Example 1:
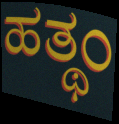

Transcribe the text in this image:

ಹತ್ಥಂ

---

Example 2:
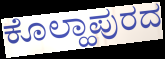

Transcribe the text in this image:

ಕೊಲ್ಹಾಪುರದ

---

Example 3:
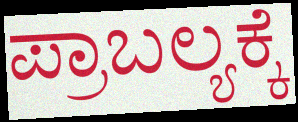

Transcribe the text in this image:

ಪ್ರಾಬಲ್ಯಕ್ಕೆ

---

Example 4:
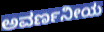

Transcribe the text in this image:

ಅವರ್ಣನೀಯ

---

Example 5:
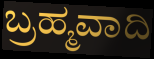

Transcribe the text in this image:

ಬ್ರಹ್ಮವಾದಿ